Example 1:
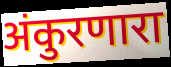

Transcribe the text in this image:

अंकुरणारा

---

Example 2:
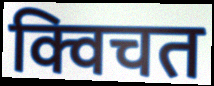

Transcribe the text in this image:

क्विचत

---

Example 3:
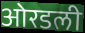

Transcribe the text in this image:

ओरडली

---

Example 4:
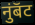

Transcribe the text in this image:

नुंबॅट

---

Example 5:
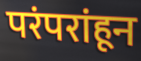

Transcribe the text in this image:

परंपरांहून